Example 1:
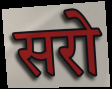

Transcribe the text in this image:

सरो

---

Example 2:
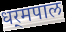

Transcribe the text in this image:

धर्मपाल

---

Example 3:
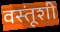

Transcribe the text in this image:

वस्तूंशी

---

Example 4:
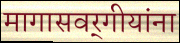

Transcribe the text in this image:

मागासवर्गीयांना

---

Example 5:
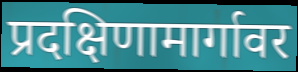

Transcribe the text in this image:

प्रदक्षिणामार्गावर